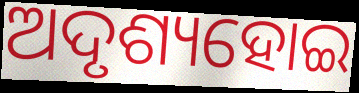
ଅଦୃଶ୍ୟହୋଇ